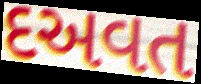
દઅવત